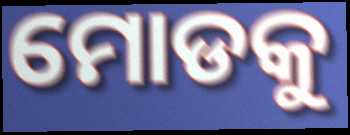
ମୋଡକୁ